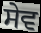
ਸੇਵ